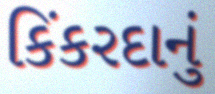
કિંકરદાનું